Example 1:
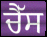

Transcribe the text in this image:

ਚੈੱਸ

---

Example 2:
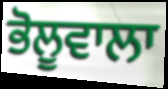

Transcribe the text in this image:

ਭੋਲੂਵਾਲਾ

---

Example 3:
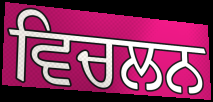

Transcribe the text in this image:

ਵਿਚਲਨ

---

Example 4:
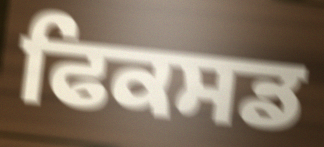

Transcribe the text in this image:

ਫਿਕਸਡ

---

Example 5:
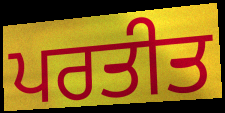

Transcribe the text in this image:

ਪਰਤੀਤ